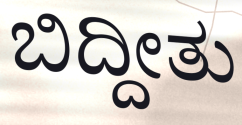
ಬಿದ್ದೀತು